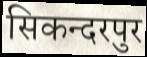
सिकन्दरपुर